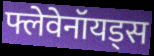
फ्लेवेनॉयड्स